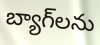
బ్యాగ్‌లను